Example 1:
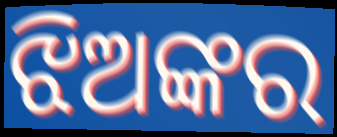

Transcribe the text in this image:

ଝିଅଙ୍କର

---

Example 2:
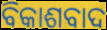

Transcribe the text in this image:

ବିକାଶବାଦ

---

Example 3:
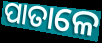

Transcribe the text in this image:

ପାତାଳେ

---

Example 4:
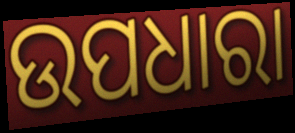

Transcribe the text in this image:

ଉପଧାରା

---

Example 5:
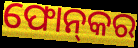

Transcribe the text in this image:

ଫୋନ୍‌କର